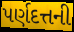
પર્ણદત્તની